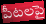
పీటలపై